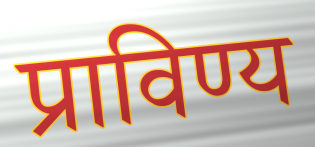
प्राविण्य